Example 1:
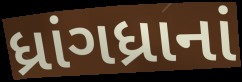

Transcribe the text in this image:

ધ્રાંગધ્રાનાં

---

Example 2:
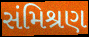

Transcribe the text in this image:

સંમિશ્રણ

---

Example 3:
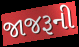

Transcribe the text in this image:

જાજરૂની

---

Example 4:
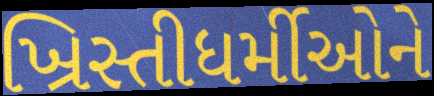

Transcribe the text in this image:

ખ્રિસ્તીધર્મીઓને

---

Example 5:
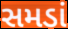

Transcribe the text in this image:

સમડાં